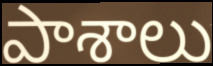
పాశాలు